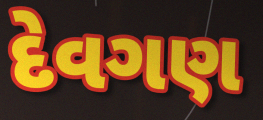
દેવગણ